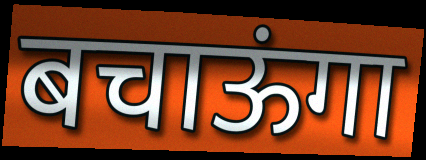
बचाऊंगा